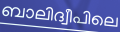
ബാലിദ്വീപിലെ